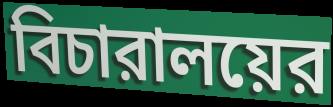
বিচারালয়ের